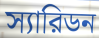
স্যারিডন